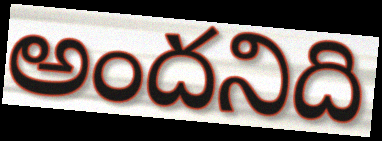
అందనిది